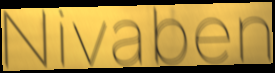
Nivaben